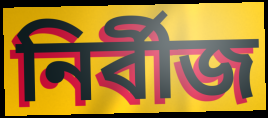
নির্বীজ